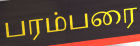
பரம்பரை